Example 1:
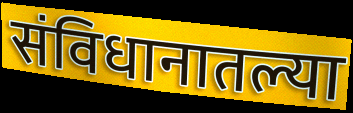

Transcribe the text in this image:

संविधानातल्या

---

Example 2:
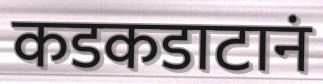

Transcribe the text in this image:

कडकडाटानं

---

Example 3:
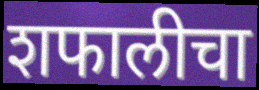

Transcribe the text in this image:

शफालीचा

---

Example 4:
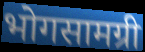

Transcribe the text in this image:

भोगसामग्री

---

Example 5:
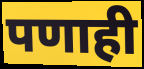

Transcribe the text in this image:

पणाही